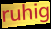
ruhig